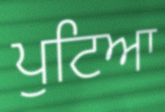
ਪੁਟਿਆ